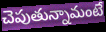
చెపుతున్నామంటే